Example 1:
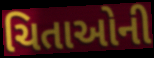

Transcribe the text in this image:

ચિતાઓની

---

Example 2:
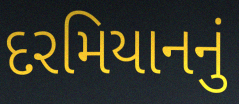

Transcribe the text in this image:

દરમિયાનનું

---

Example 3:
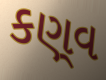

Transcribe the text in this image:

કણ્‌વ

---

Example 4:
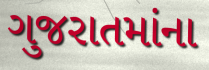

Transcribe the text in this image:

ગુજરાતમાંના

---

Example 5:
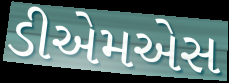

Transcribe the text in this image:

ડીએમએસ